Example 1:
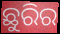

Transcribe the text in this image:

ଛୁରିର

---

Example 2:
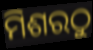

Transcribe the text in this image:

ମିଶରଠୁ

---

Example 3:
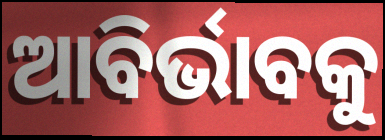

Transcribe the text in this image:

ଆବିର୍ଭାବକୁ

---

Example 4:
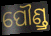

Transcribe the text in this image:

ପୌଣ୍ଡ୍ର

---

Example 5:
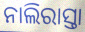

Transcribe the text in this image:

ନାଲିରାସ୍ତା